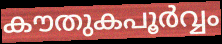
കൗതുകപൂർവ്വം